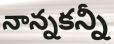
నాన్నకన్నీ